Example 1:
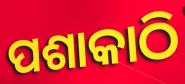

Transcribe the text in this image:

ପଶାକାଠି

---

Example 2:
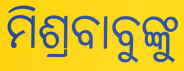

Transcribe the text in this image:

ମିଶ୍ରବାବୁଙ୍କୁ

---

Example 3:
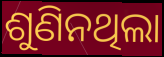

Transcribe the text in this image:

ଶୁଣିନଥିଲା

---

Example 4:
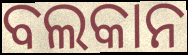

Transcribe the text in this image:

ବଲକାନ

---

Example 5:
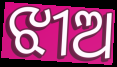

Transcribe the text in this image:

ଝୀଅ